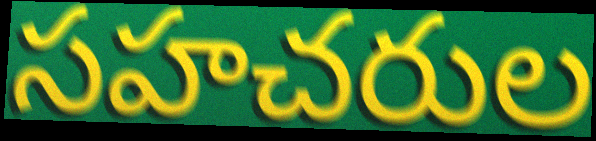
సహచరుల